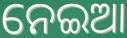
ନେଇଆ